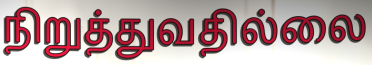
நிறுத்துவதில்லை